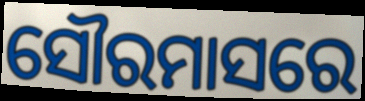
ସୌରମାସରେ